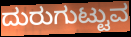
ದುರುಗುಟ್ಟುವ